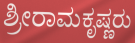
ಶ್ರೀರಾಮಕೃಷ್ಣರು